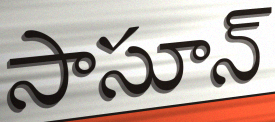
సాసూన్